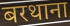
बरथाना